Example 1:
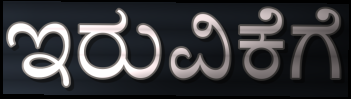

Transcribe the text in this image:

ಇರುವಿಕೆಗೆ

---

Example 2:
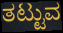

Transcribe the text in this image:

ತಟ್ಟುವ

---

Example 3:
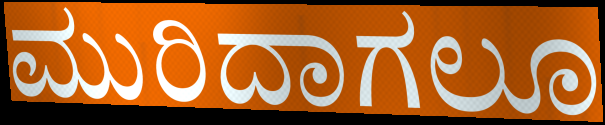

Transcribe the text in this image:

ಮುರಿದಾಗಲೂ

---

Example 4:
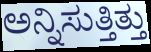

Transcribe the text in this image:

ಅನ್ನಿಸುತ್ತಿತ್ತು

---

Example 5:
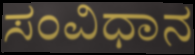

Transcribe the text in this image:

ಸಂವಿಧಾನ